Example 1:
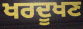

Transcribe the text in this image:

ਖਰਦੂਖਣ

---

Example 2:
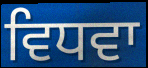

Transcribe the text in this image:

ਵਿਧਵਾ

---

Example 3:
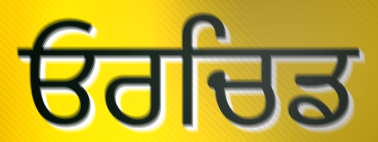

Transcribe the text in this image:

ਓਰਚਿਡ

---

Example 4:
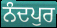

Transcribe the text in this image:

ਨੰਦਪੁਰ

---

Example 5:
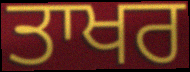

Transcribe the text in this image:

ਤਾਖਰ